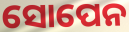
ସୋପେନ